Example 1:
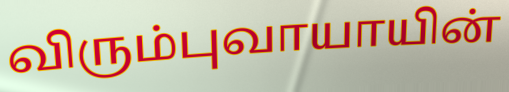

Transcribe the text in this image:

விரும்புவாயாயின்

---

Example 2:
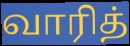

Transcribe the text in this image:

வாரித்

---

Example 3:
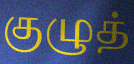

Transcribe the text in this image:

குழுத்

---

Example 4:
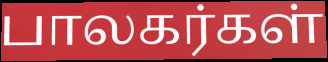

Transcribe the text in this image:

பாலகர்கள்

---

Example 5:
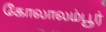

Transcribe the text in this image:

கோலாலம்பூர்